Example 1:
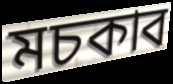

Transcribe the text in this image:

মচকাব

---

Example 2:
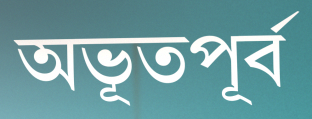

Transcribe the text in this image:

অভূতপূর্ব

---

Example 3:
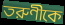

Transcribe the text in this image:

তরুণীকে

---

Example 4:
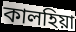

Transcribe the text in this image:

কালহিয়া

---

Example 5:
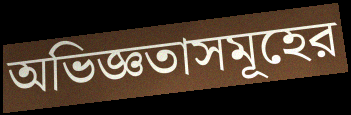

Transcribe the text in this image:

অভিজ্ঞতাসমূহের